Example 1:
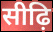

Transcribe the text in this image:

सीढ़ि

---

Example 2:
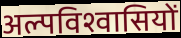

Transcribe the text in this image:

अल्पविश्वासियों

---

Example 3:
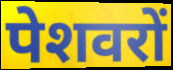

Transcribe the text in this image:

पेशवरों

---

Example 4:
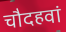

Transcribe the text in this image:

चौदहवां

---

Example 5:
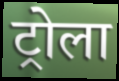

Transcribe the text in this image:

ट्रोला